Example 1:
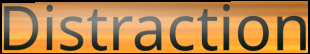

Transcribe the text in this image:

Distraction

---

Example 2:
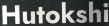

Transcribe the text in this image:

Hutokshi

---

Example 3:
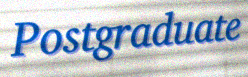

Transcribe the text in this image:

Postgraduate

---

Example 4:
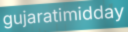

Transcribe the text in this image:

gujaratimidday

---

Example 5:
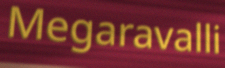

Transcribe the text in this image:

Megaravalli